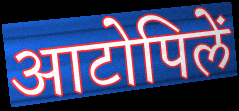
आटोपिलें